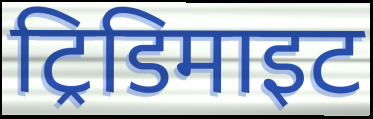
ट्रिडिमाइट